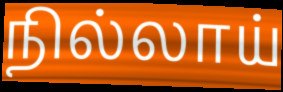
நில்லாய்